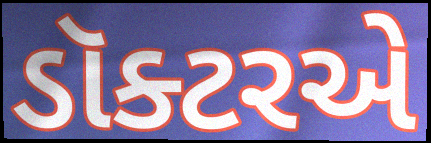
ડૉક્ટરએ